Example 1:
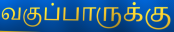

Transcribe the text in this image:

வகுப்பாருக்கு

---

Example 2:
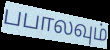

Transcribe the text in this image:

பபாலவும்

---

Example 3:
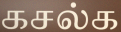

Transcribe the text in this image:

கசல்க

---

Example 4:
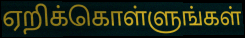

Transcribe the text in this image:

ஏறிக்கொள்ளுங்கள்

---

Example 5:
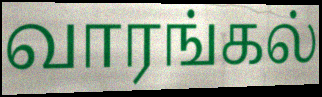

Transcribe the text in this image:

வாரங்கல்